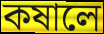
কষালে